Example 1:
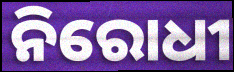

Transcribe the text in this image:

ନିରୋଧୀ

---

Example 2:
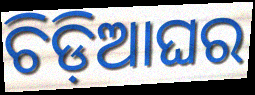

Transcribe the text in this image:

ଚିଡ଼ିଆଘର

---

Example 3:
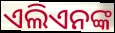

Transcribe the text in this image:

ଏଲିଏନଙ୍କ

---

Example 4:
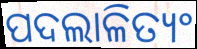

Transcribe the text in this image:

ପଦଲାଳିତ୍ୟଂ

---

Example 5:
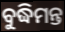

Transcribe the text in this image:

ବୁଦ୍ଧିମନ୍ତ